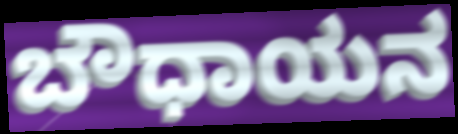
ಬೌಧಾಯನ